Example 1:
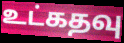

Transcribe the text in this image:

உட்கதவு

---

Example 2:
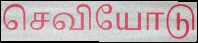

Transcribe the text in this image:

செவியோடு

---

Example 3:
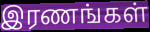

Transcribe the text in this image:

இரணங்கள்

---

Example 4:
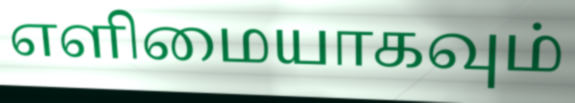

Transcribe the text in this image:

எளிமையாகவும்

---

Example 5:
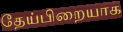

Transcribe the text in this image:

தேய்பிறையாக